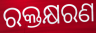
ରକ୍ତକ୍ଷରଣ